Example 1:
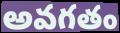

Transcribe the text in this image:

అవగతం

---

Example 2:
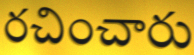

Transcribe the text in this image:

రచించారు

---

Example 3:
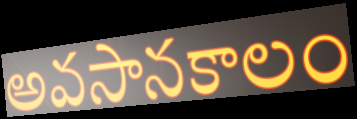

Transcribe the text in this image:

అవసానకాలం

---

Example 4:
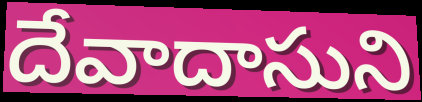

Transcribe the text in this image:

దేవాదాసుని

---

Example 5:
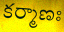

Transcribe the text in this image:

కర్మాణః